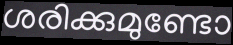
ശരിക്കുമുണ്ടോ